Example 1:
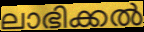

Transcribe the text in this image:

ലാഭിക്കൽ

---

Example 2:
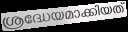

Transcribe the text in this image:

ശ്രദ്ധേയമാക്കിയത്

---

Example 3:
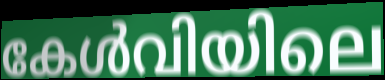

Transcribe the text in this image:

കേൾവിയിലെ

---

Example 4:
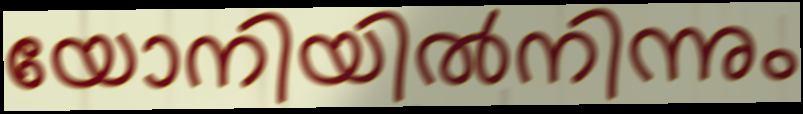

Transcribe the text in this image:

യോനിയിൽനിന്നും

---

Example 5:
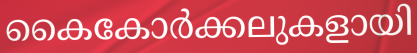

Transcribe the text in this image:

കൈകോർക്കലുകളായി